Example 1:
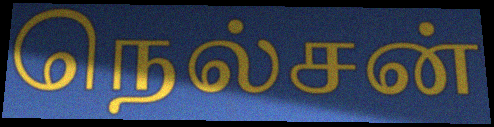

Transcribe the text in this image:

நெல்சன்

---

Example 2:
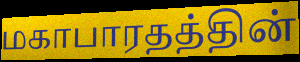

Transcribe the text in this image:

மகாபாரதத்தின்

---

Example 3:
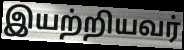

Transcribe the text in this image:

இயற்றியவர்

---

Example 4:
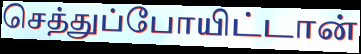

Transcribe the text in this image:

செத்துப்போயிட்டான்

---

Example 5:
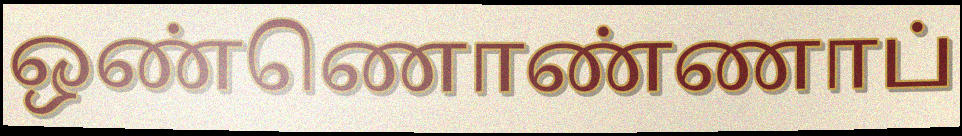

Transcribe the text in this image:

ஒண்ணொண்ணாப்